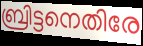
ബ്രിട്ടനെതിരേ